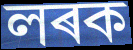
লৰক